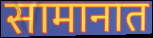
सामानात